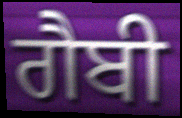
ਗੈਬੀ